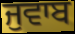
ਜੁਵਾਬ